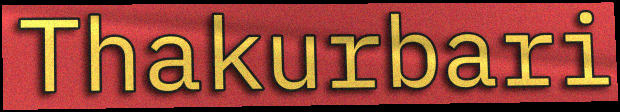
Thakurbari